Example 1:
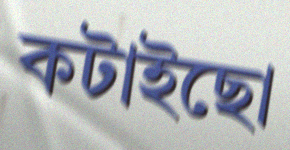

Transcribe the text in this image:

কটাইছো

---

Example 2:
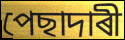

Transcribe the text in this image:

পেছাদাৰী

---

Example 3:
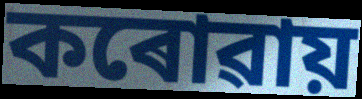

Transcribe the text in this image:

কৰোৱায়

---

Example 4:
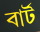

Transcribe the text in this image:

বাৰ্ট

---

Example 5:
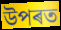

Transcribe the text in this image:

উপৰত